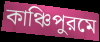
কাঞ্চিপুরমে